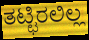
ತಟ್ಟಿರಲಿಲ್ಲ